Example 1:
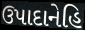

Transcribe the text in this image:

ઉપાદાનેહિ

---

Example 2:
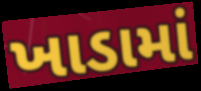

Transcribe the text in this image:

ખાડામાં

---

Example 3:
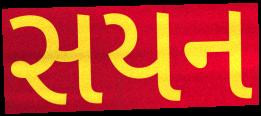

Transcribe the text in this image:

સયન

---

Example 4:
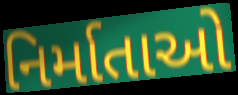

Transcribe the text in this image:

નિર્માતાઓ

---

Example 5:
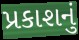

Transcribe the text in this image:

પ્રકાશનું